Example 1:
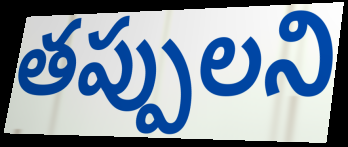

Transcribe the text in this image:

తప్పులని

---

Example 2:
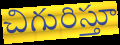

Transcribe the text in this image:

చిగురిస్తూ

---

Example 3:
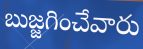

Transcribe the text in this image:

బుజ్జగించేవారు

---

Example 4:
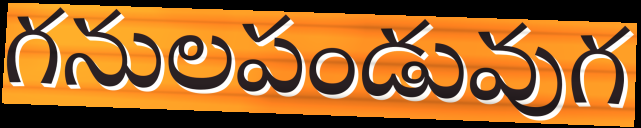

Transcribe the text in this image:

గనులపండువుగ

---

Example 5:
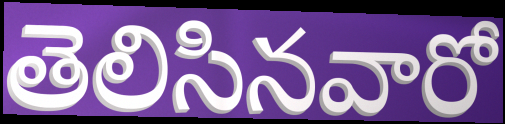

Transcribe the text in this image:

తెలిసినవారో